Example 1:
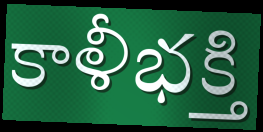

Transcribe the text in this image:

కాళీభక్తి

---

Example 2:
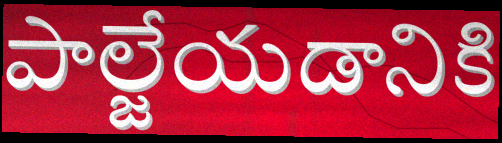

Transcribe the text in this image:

పాల్జేయడానికి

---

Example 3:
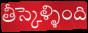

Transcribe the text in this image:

తీస్కెళ్ళింది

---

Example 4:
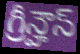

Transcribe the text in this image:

గ్రీన్హౌస్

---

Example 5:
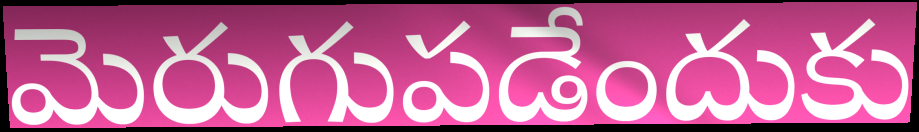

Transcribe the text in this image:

మెరుగుపడేందుకు